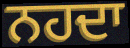
ਨਹਦਾ